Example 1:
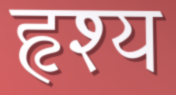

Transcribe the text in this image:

हृश्य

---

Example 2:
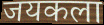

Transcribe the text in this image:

जयकला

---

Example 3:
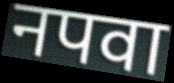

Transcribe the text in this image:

नपवा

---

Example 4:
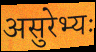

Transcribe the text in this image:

असुरेभ्यः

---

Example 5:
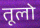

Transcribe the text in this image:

तूलो